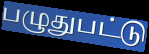
பழுதுபட்டு